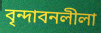
বৃন্দাবনলীলা